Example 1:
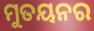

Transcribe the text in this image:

ମୁତୟନର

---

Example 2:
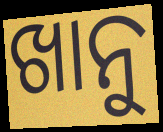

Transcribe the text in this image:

ଖାନୁ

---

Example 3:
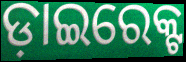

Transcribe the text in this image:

ଡ଼ାଇରେକ୍ଟ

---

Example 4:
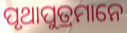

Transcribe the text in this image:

ପୃଥାପୁତ୍ରମାନେ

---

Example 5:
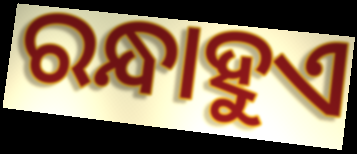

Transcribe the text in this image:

ରନ୍ଧାହୁଏ